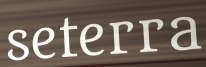
seterra